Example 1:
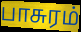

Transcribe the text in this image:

பாசுரம்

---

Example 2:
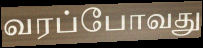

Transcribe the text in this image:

வரப்போவது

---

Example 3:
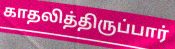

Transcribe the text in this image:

காதலித்திருப்பார்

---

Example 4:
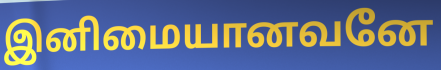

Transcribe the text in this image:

இனிமையானவனே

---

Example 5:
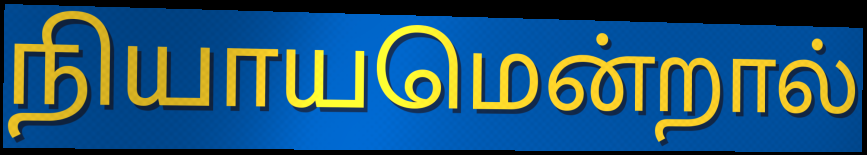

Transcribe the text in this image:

நியாயமென்றால்